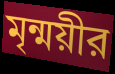
মৃন্ময়ীর